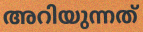
അറിയുന്നത്